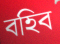
বহিব